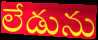
లేడును